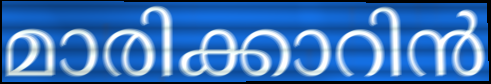
മാരിക്കാറിൻ